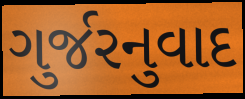
ગુર્જરનુવાદ